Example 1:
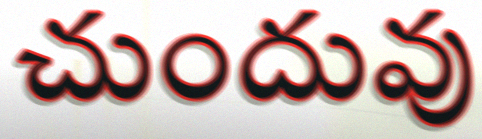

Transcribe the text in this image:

చుందువు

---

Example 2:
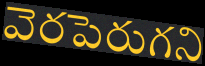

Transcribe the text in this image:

వెరపెరుగని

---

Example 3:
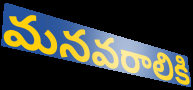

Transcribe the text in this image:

మనవరాలికి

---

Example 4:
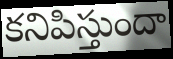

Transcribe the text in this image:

కనిపిస్తుందా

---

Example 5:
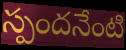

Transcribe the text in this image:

స్పందనేంటి